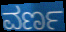
ವರ್ಣ